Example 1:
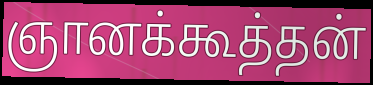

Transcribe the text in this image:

ஞானக்கூத்தன்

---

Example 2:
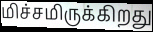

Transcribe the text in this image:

மிச்சமிருக்கிறது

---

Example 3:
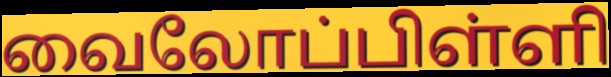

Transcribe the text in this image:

வைலோப்பிள்ளி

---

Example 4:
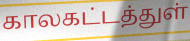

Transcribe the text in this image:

காலகட்டத்துள்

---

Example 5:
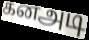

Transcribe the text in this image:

கனஅடி